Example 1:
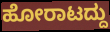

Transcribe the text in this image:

ಹೋರಾಟದ್ದು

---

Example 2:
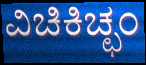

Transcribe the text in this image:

ವಿಚಿಕಿಚ್ಛಂ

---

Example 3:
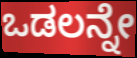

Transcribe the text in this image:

ಒಡಲನ್ನೇ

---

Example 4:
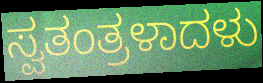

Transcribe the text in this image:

ಸ್ವತಂತ್ರಳಾದಳು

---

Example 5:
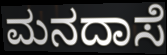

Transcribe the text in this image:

ಮನದಾಸೆ